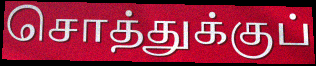
சொத்துக்குப்